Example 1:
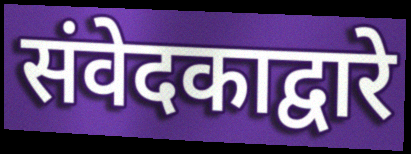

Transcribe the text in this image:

संवेदकाद्वारे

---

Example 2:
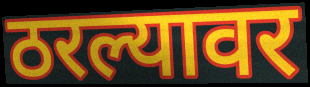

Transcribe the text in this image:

ठरल्यावर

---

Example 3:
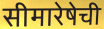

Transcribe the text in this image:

सीमारेषेची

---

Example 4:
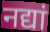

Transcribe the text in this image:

नद्यां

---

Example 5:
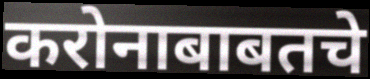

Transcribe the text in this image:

करोनाबाबतचे